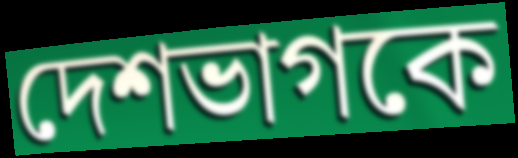
দেশভাগকে